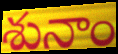
శునాం